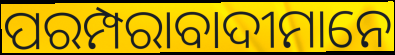
ପରମ୍ପରାବାଦୀମାନେ